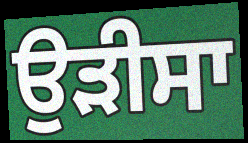
ਉੜੀਸਾ